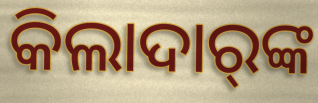
କିଲାଦାର୍‍ଙ୍କ